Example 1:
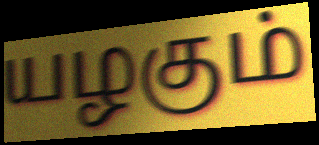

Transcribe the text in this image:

யழகும்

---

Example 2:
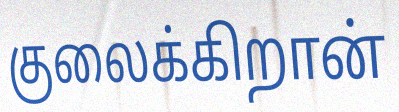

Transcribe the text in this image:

குலைக்கிறான்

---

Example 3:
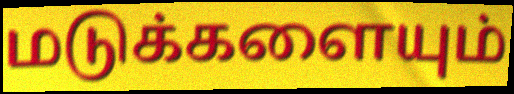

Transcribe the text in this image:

மடுக்களையும்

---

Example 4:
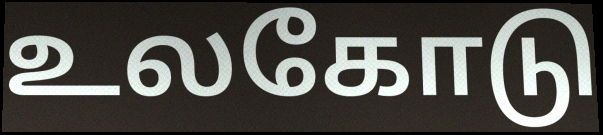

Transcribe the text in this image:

உலகோடு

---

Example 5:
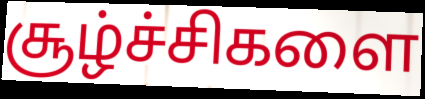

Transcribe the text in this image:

சூழ்ச்சிகளை